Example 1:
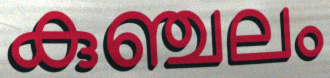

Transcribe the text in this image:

കുഞ്ചലം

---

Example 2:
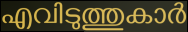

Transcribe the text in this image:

എവിടുത്തുകാർ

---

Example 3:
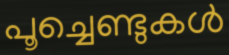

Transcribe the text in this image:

പൂച്ചെണ്ടുകൾ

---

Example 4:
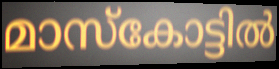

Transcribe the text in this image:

മാസ്കോട്ടിൽ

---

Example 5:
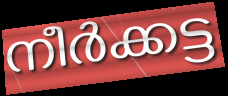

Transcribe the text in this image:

നീർക്കട്ട